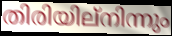
തിരിയില്നിന്നും